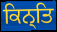
ਕਿਨ੍ਤਿ